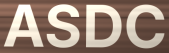
ASDC